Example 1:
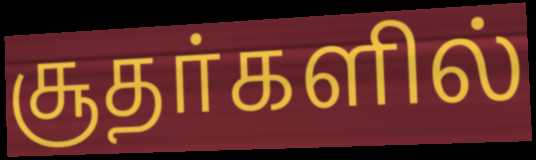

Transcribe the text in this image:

சூதர்களில்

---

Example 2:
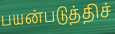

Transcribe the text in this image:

பயன்படுத்திச்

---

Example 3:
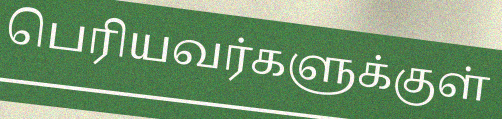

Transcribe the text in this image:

பெரியவர்களுக்குள்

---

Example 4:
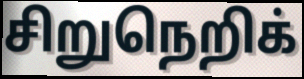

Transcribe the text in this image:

சிறுநெறிக்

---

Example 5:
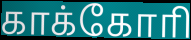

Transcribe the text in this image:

காக்கோரி